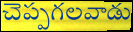
చెప్పగలవాడు